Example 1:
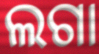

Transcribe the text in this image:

ଲଗା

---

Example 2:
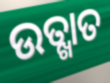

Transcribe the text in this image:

ଉତ୍ଖାତ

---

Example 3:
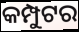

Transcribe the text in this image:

କମ୍ପୁଟର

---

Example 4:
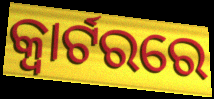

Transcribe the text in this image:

କ୍ଵାର୍ଟରରେ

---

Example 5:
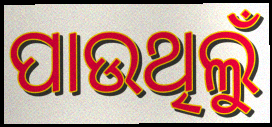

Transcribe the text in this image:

ପାଉଥିଲୁଁ